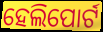
ହେଲିପୋର୍ଟ